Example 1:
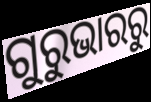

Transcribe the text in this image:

ଗୁରୁଭାରରୁ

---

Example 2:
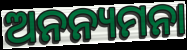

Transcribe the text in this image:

ଅନନ୍ୟମନା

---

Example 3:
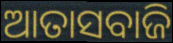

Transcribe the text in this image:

ଆତାସବାଜି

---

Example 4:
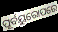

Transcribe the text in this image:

ପୂର୍ବୟୁରୋପରେ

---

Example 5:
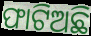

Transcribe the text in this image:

ଫାଟିଅଛି